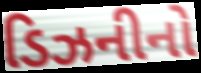
ડિઝનીનો